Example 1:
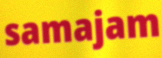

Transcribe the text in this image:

samajam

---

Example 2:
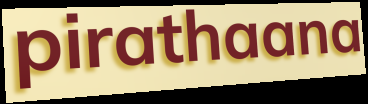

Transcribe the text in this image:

pirathaana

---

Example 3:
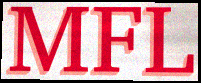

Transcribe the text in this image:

MFL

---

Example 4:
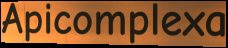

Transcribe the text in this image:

Apicomplexa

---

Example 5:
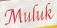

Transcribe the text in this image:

Muluk